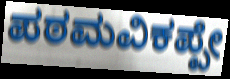
ಪಠಮವಿಕಪ್ಪೇ